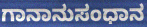
ಗಾನಾನುಸಂಧಾನ